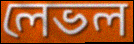
লেভল